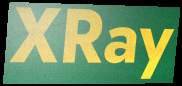
XRay